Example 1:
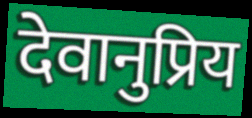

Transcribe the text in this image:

देवानुप्रिय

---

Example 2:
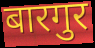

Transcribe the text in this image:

बारगुर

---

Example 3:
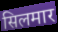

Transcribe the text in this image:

सिलमार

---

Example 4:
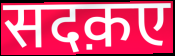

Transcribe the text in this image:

सदक़ए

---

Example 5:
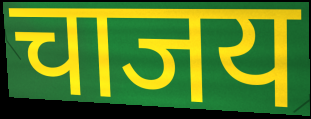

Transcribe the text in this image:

चाजय